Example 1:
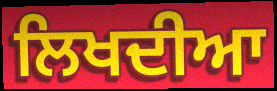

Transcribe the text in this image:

ਲਿਖਦੀਆ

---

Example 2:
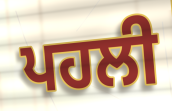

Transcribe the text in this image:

ਪਹਲੀ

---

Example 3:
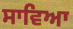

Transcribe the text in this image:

ਸਾਵਿਆ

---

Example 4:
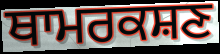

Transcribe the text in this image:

ਥਾਮਰਕਸ਼ਣ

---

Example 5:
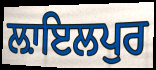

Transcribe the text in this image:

ਲ਼ਾਇਲਪੁਰ